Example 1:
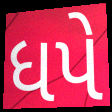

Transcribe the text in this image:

ધપે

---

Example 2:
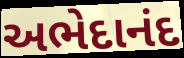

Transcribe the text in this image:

અભેદાનંદ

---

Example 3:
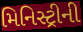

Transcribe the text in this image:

મિનિસ્ટ્રીની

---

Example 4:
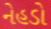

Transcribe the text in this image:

નેહડો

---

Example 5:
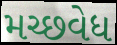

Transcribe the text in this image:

મચ્છવેધ